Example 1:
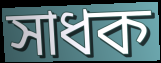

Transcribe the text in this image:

সাধক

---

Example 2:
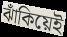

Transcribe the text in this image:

ঝাঁকিয়েই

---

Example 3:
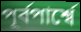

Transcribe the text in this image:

পূর্বপার্শ্বে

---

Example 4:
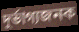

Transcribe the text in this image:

দুর্ভাগ্যজনক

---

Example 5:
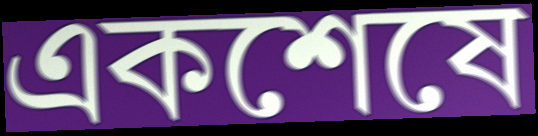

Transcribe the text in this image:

একশেষে